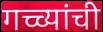
गच्च्यांची